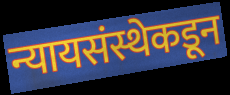
न्यायसंस्थेकडून